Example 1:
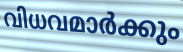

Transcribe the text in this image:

വിധവമാർക്കും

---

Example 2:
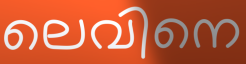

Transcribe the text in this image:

ലെവിനെ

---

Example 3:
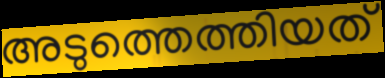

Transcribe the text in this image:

അടുത്തെത്തിയത്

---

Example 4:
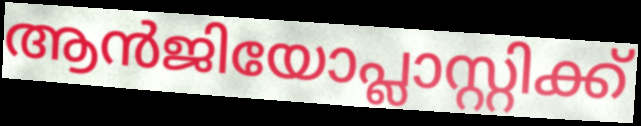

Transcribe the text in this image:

ആൻജിയോപ്ലാസ്റ്റിക്ക്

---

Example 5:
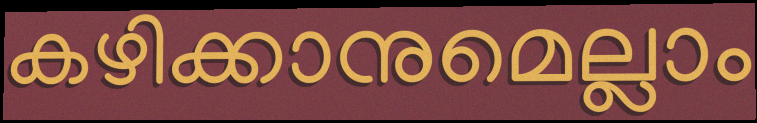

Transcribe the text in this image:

കഴിക്കാനുമെല്ലാം